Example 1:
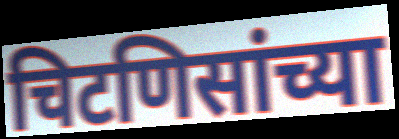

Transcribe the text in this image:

चिटणिसांच्या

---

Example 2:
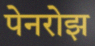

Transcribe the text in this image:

पेनरोझ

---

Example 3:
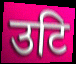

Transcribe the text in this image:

उटि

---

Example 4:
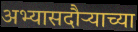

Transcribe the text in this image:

अभ्यासदौऱ्याच्या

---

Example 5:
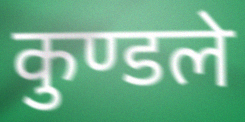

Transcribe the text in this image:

कुण्डले